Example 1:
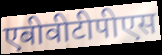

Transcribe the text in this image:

एबीवीटीपीएस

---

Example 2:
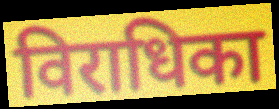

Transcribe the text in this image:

विराधिका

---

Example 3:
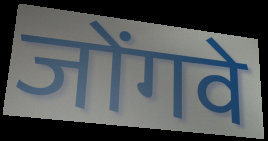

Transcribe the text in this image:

जोंगवे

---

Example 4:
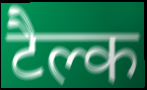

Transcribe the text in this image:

टैल्क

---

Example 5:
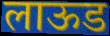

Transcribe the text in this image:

लाऊड